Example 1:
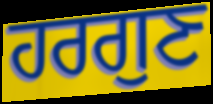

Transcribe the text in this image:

ਹਰਗੁਣ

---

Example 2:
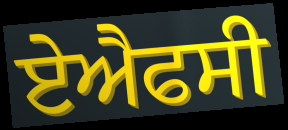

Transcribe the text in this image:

ਏਐਫਸੀ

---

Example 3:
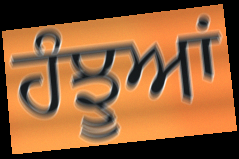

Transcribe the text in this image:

ਹੰਝੂਆਂ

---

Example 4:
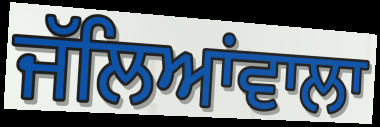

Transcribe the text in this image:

ਜੱਲਿਆਂਵਾਲਾ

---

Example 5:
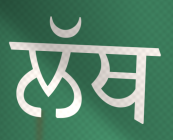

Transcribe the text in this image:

ਲੱਥ